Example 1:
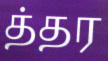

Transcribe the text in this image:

த்தர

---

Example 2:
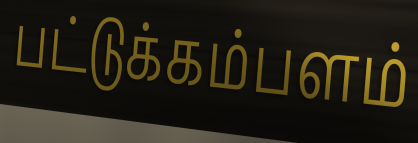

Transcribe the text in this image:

பட்டுக்கம்பளம்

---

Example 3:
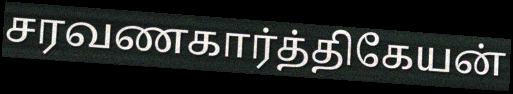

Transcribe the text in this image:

சரவணகார்த்திகேயன்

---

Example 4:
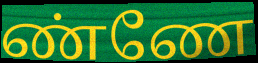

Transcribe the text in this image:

ண்ணே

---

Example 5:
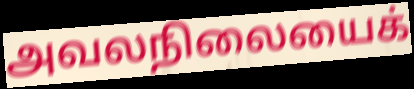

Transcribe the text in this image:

அவலநிலையைக்